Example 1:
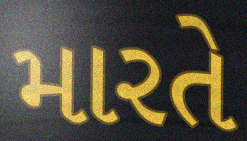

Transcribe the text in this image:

મારતે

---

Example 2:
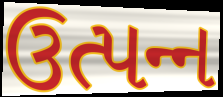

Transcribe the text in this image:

ઉત્પન્‍ન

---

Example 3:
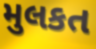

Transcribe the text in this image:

મુલકત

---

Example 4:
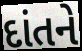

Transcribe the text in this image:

દાંતને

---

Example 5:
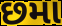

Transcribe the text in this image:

છમા